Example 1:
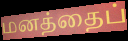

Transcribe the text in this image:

மனத்தைப்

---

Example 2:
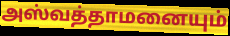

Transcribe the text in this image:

அஸ்வத்தாமனையும்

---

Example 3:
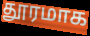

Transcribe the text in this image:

தூரமாக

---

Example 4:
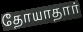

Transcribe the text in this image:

தோயாதார்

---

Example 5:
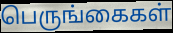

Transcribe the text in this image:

பெருங்கைகள்